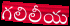
గలిలీయ